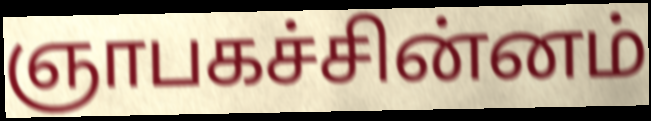
ஞாபகச்சின்னம்